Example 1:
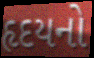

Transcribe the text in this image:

હૃદયનો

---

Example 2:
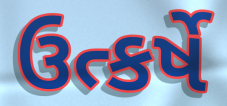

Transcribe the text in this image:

ઉત્કર્ષે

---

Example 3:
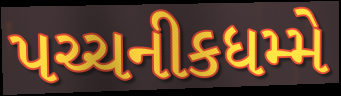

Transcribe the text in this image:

પચ્ચનીકધમ્મે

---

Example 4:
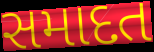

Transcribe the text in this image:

સમાદત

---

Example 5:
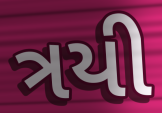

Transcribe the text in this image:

ત્રયી